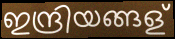
ഇന്ദ്രിയങ്ങള്